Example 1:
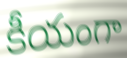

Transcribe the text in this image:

కీయంగా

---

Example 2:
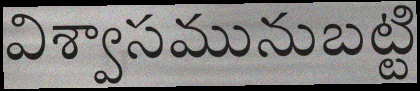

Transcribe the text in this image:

విశ్వాసమునుబట్టి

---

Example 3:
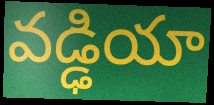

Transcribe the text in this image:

వడ్ఢియా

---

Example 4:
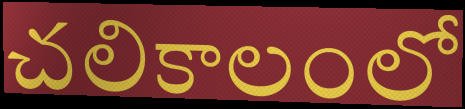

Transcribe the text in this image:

చలికాలంలో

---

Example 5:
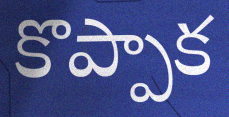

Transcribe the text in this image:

కొప్పాక